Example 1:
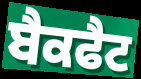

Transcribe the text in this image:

ਬੈਕਫੈਟ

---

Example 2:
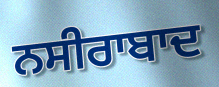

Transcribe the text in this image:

ਨਸੀਰਾਬਾਦ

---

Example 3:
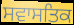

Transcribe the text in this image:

ਸਵਾਸਤਿਕ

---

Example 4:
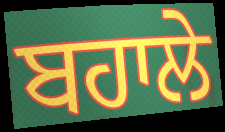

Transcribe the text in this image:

ਬਹਾਲੇ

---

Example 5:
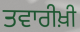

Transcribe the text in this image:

ਤਵਾਰੀਖ਼ੀ